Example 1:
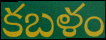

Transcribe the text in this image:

కబళం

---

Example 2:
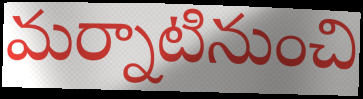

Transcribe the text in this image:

మర్నాటినుంచి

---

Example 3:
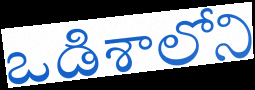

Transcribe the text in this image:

ఒడిశాలోని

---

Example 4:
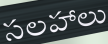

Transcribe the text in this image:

సలహాలు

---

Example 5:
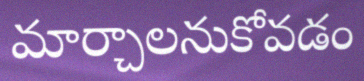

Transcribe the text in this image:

మార్చాలనుకోవడం